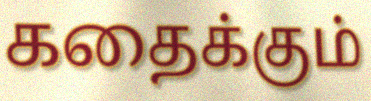
கதைக்கும்